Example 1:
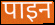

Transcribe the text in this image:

पाइन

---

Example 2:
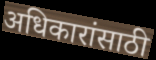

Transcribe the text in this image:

अधिकारांसाठी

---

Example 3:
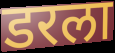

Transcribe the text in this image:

डरला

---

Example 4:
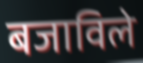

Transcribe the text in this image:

बजाविले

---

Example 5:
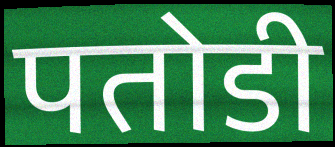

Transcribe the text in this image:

पतोडी